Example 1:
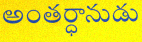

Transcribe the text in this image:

అంతర్ధానుడు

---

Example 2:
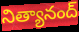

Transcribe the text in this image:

నిత్యానంద్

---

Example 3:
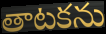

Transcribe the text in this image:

తాటకను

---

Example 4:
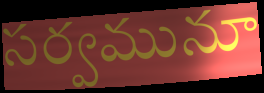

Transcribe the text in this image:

సర్వమునూ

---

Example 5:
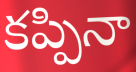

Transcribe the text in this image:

కప్పినా